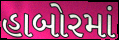
હાબોરમાં